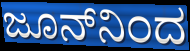
ಜೂನ್‌ನಿಂದ